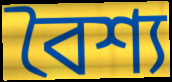
বৈশ্য